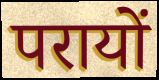
परायों